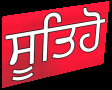
ਸੂਤਿਹੋ